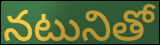
నటునితో